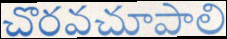
చొరవచూపాలి